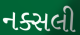
નક્સલી